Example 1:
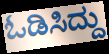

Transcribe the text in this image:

ಓಡಿಸಿದ್ದು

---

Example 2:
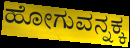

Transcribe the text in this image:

ಹೋಗುವನ್ನಕ್ಕ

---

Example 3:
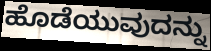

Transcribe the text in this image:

ಹೊಡೆಯುವುದನ್ನು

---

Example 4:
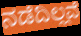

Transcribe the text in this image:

ನಡೆದಿಲ್ಲವೆ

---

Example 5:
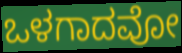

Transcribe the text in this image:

ಒಳಗಾದವೋ